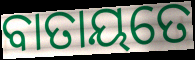
ବାତାୟତେ